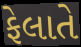
ફેલાતે